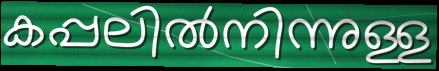
കപ്പലിൽനിന്നുള്ള